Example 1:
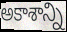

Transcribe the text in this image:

అకాశాన్ని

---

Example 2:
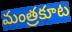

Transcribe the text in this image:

మంత్రకూట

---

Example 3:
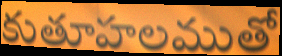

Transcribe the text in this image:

కుతూహలముతో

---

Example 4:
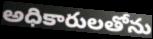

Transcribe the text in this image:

అధికారులతోను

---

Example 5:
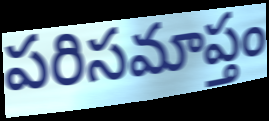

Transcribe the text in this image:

పరిసమాప్తం